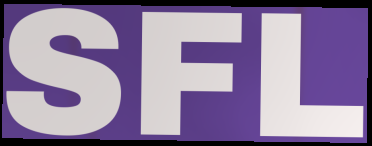
SFL